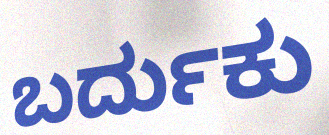
ಬರ್ದುಕು